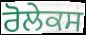
ਰੋਲੇਕਸ